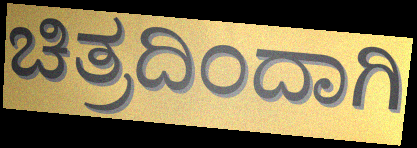
ಚಿತ್ರದಿಂದಾಗಿ